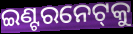
ଇଣ୍ଟରନେଟ୍‌କୁ